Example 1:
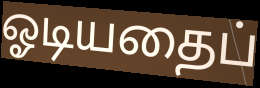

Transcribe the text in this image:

ஓடியதைப்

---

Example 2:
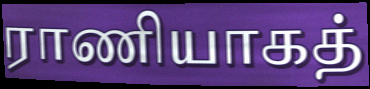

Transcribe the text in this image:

ராணியாகத்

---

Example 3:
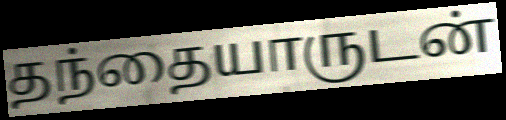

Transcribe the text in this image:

தந்தையாருடன்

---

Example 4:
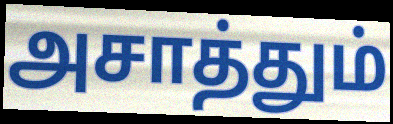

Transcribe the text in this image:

அசாத்தும்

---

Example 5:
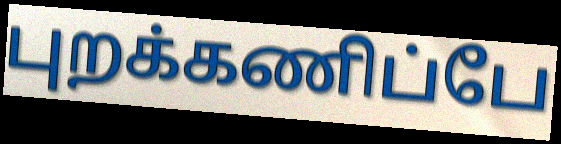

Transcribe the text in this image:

புறக்கணிப்பே